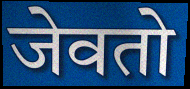
जेवतो